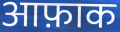
आफ़ाक